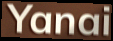
Yanai